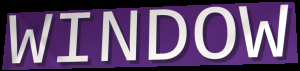
WINDOW